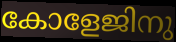
കോളേജിനു